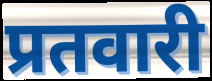
प्रतवारी